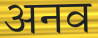
अनव